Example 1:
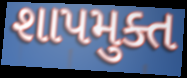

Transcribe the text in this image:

શાપમુક્ત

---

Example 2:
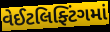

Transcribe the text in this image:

વેઈટલિફ્ટિંગમાં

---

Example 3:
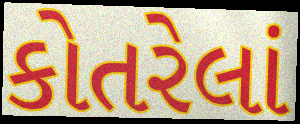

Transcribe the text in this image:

કોતરેલાં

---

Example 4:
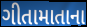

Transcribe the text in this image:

ગીતામાતાના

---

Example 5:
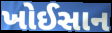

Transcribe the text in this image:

ખોઈસાન